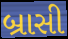
બ્રાસી